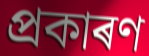
প্ৰকাৰণ